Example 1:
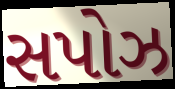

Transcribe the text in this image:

સપોઝ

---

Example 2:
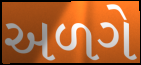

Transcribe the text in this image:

અળગે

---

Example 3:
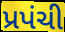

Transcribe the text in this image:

પ્રપંચી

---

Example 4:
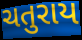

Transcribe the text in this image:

ચતુરાય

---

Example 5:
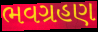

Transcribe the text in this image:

ભવગ્રહણ